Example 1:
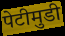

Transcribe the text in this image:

पेटीमुडी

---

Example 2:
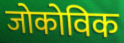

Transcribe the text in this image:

जोकोविक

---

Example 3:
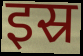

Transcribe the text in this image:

इस्र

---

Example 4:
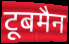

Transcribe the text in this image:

टूबमैन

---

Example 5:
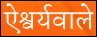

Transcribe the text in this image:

ऐश्वर्यवाले